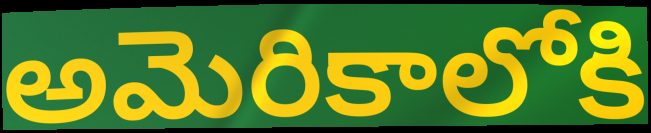
అమెరికాలోకి